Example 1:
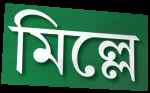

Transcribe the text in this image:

মিল্লে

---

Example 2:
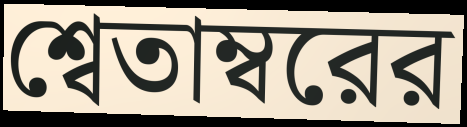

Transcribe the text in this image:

শ্বেতাম্বরের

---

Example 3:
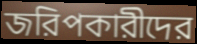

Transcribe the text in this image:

জরিপকারীদের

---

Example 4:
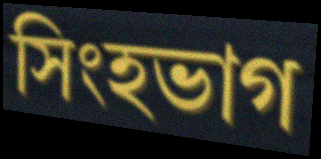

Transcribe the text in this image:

সিংহভাগ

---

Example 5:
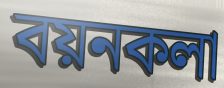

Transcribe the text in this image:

বয়নকলা